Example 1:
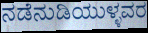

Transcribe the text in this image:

ನಡೆನುಡಿಯುಳ್ಳವರ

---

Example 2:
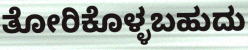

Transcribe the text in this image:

ತೋರಿಕೊಳ್ಳಬಹುದು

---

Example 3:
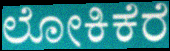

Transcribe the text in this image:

ಲೋಕಿಕೆರೆ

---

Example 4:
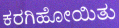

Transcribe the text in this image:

ಕರಗಿಹೋಯಿತು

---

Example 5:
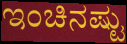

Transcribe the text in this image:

ಇಂಚಿನಷ್ಟು